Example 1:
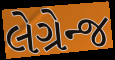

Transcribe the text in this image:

લેગ્રેન્જ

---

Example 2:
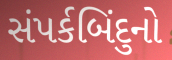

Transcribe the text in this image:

સંપર્કબિંદુનો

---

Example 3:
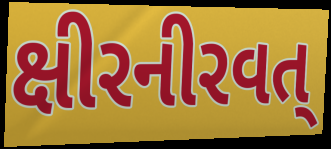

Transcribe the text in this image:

ક્ષીરનીરવત્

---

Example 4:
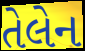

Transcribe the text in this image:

તેલેન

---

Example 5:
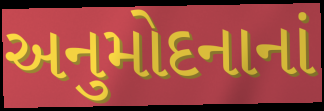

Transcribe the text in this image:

અનુમોદનાનાં